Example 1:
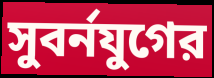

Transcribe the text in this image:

সুবর্নযুগের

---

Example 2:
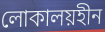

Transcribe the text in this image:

লোকালয়হীন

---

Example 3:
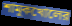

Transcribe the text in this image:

শামুকখোলের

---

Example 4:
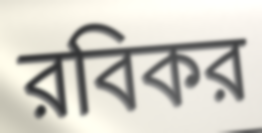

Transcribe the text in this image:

রবিকর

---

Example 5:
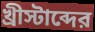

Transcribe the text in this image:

খ্রীস্টাব্দের